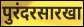
पुरंदरसारखा